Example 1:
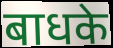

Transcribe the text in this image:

बाधके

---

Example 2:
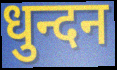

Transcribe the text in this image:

धुन्दन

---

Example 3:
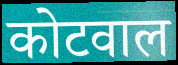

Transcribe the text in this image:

कोटवाल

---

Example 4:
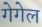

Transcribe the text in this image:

गेगेल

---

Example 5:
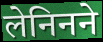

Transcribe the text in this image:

लेनिनने